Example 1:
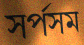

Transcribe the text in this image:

সর্পসম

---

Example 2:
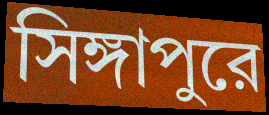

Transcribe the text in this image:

সিঙ্গাপুরে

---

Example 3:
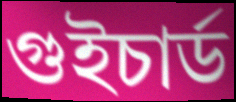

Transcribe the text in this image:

গুইচার্ড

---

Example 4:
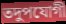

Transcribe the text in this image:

তদুপযোগী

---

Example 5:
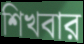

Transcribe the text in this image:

শিখবার